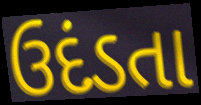
ઉદંડતા